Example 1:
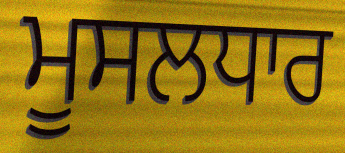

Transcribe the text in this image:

ਮੂਸਲਧਾਰ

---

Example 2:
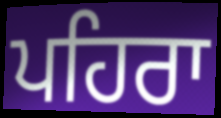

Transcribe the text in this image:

ਪਹਿਰਾ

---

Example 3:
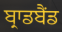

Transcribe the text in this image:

ਬ੍ਰਾਡਬੈਂਡ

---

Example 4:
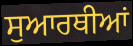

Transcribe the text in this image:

ਸੁਆਰਥੀਆਂ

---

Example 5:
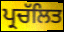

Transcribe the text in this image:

ਪ੍ਰਚੱਲਿਤ